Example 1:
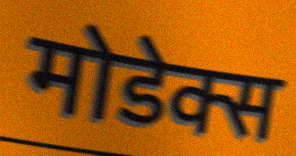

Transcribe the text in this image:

मोडेक्स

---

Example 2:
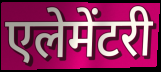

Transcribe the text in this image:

एलेमेंटरी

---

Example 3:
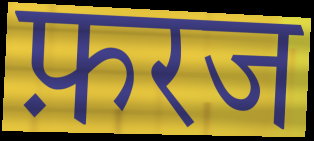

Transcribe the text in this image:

फ़रज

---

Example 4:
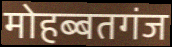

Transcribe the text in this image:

मोहब्बतगंज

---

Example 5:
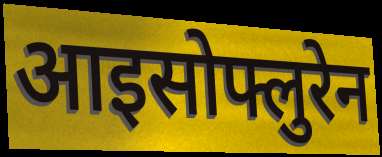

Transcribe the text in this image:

आइसोफ्लुरेन